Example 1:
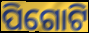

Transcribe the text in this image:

ପିଗୋଟି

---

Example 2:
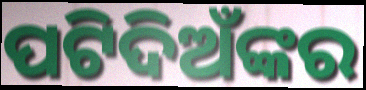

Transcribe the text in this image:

ପଟିଦିଅଁଙ୍କର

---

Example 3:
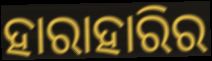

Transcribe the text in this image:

ହାରାହାରିର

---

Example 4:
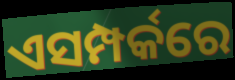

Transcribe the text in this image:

ଏସମ୍ପର୍କରେ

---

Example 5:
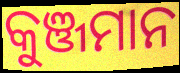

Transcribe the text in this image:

କୁଞ୍ଜମାନ